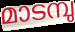
മാടമ്പു